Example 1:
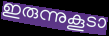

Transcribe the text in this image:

ഇരുന്നുകൂടാ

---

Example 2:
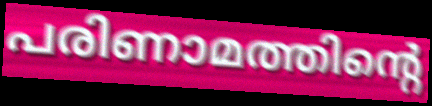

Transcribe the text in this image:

പരിണാമത്തിന്റെ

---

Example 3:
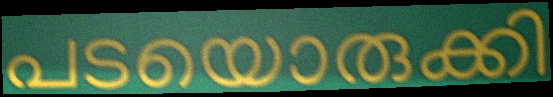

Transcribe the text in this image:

പടയൊരുക്കി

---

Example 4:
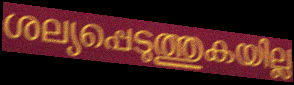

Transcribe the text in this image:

ശല്യപ്പെടുത്തുകയില്ല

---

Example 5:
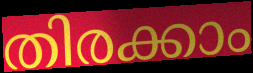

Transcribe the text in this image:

തിരക്കാം